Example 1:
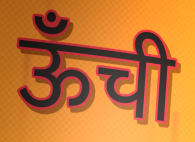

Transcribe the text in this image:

ऊँची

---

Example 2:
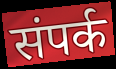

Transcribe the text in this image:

संपर्क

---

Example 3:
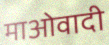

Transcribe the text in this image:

माओवादी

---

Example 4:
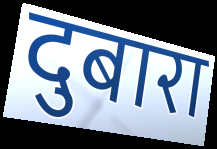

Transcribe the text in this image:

दुबारा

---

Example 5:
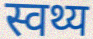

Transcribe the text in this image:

स्वथ्य